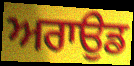
ਅਰਾਉਡ